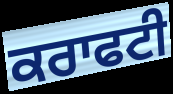
ਕਰਾਫਟੀ